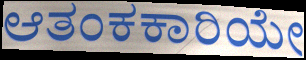
ಆತಂಕಕಾರಿಯೇ